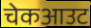
चेकआउट